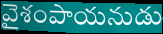
వైశంపాయనుడు